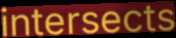
intersects